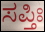
ಸಪ್ತಿಃ